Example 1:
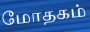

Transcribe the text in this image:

மோதகம்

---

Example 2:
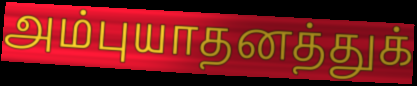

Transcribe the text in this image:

அம்புயாதனத்துக்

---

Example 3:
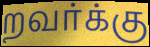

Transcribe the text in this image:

றவர்க்கு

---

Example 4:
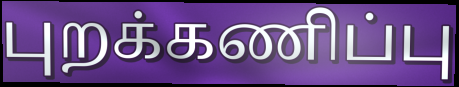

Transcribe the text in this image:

புறக்கணிப்பு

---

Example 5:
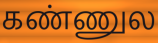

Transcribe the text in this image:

கண்ணுல